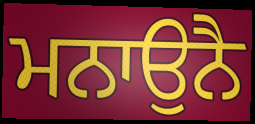
ਮਨਾਉਨੈ